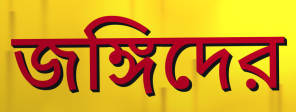
জঙ্গিদের